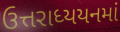
ઉત્તરાધ્યયનમાં